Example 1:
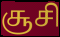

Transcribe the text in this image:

சூசி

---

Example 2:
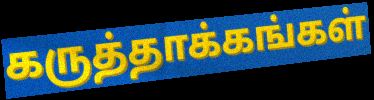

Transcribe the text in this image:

கருத்தாக்கங்கள்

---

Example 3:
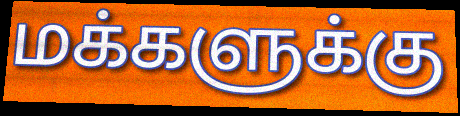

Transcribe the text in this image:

மக்களுக்கு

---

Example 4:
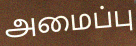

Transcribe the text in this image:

அமைப்பு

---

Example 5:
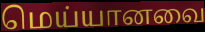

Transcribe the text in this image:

மெய்யானவை